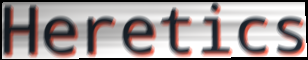
Heretics